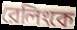
রেলিংকে